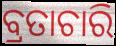
ବ୍ରତାଚାରି